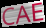
CAE